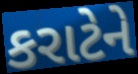
કરાટેને